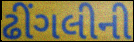
ઢીંગલીની